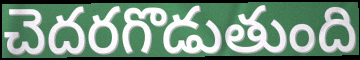
చెదరగొడుతుంది